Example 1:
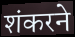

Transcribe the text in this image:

शंकरने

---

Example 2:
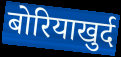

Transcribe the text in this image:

बोरियाखुर्द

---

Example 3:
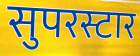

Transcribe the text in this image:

सुपरस्टार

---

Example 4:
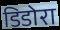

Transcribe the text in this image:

डिडोरा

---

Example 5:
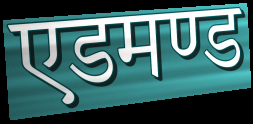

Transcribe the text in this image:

एडमण्ड